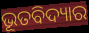
ଭୂତବିଦ୍ୟାର